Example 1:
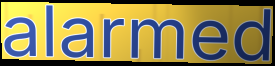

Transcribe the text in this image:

alarmed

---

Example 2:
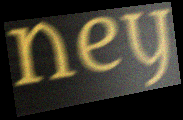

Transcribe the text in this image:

ney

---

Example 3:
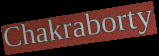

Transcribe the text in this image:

Chakraborty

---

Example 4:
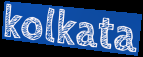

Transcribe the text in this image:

kolkata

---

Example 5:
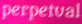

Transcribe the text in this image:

perpetual